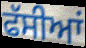
ਫੱਸੀਆਂ